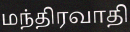
மந்திரவாதி